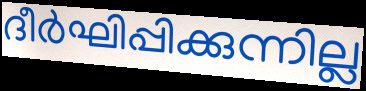
ദീർഘിപ്പിക്കുന്നില്ല